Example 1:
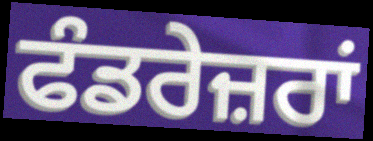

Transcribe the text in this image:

ਫੰਡਰੇਜ਼ਰਾਂ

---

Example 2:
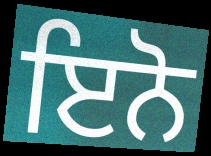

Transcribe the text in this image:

ਇਨੋ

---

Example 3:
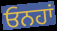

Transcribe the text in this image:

ਓਨਹਾਂ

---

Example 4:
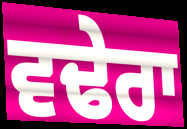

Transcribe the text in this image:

ਵਢੇਰਾ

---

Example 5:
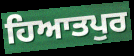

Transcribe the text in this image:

ਹਿਆਤਪੁਰ